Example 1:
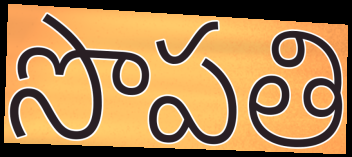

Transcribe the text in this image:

సొపతి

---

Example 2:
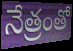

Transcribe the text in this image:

నేత్రంతో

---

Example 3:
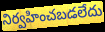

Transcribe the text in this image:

నిర్వహించబడలేదు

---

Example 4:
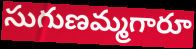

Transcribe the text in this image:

సుగుణమ్మగారూ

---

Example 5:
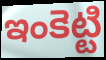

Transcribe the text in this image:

ఇంకెట్టి